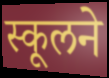
स्कूलने